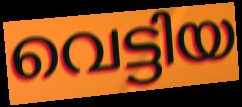
വെട്ടിയ